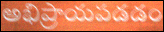
అభిప్రాయపడడం